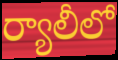
ర్యాలీలో